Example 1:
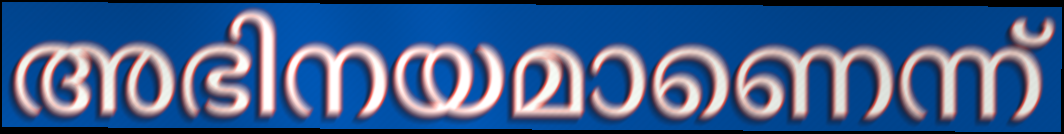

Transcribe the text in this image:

അഭിനയമാണെന്ന്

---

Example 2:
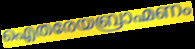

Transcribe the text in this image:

ഐതരേയബ്രാഹ്മണം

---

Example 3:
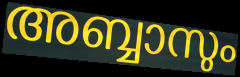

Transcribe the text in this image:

അബ്ബാസും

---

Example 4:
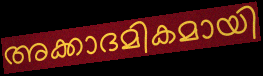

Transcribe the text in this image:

അക്കാദമികമായി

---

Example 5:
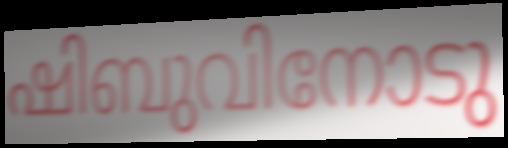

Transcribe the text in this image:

ഷിബുവിനോടു